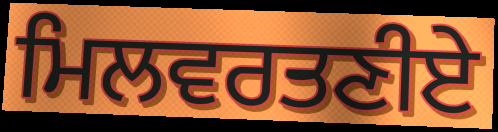
ਮਿਲਵਰਤਣੀਏ